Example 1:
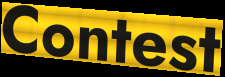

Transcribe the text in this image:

Contest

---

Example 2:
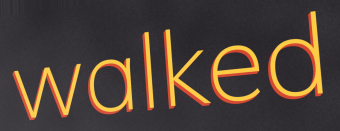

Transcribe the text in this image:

walked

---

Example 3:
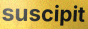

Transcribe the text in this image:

suscipit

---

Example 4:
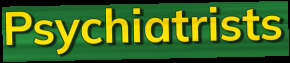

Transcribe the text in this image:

Psychiatrists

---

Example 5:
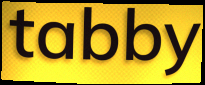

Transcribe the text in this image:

tabby